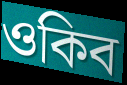
ওকিব